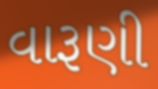
વારૂણી